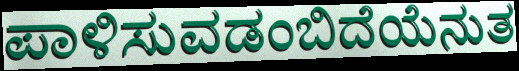
ಪಾಳಿಸುವಡಂಬಿದೆಯೆನುತ